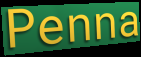
Penna